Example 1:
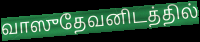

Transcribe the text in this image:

வாஸுதேவனிடத்தில்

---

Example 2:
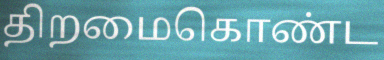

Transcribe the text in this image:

திறமைகொண்ட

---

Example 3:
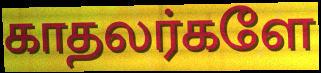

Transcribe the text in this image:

காதலர்களே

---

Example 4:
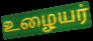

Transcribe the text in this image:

உழையர்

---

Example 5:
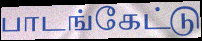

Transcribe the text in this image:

பாடங்கேட்டு